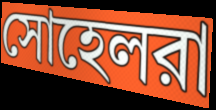
সোহেলরা